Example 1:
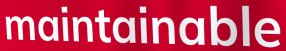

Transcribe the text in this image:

maintainable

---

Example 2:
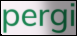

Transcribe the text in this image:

pergi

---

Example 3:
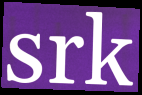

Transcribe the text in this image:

srk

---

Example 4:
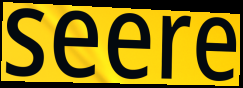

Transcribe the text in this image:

seere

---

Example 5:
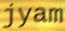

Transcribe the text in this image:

jyam